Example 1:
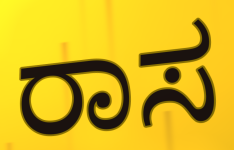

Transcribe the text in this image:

ರಾಸ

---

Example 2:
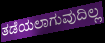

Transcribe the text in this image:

ತಡೆಯಲಾಗುವುದಿಲ್ಲ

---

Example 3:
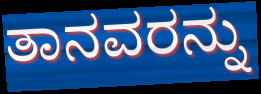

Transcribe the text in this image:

ತಾನವರನ್ನು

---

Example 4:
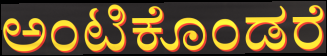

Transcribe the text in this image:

ಅಂಟಿಕೊಂಡರೆ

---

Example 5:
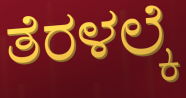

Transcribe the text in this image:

ತೆರಳಲ್ಕೆ